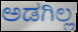
ಅಡಗಿಲ್ಲ